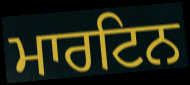
ਮਾਰਟਿਨ